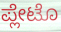
ಪ್ಲೇಟೊ